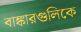
বাঙ্কারগুলিকে